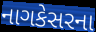
નાગકેસરના